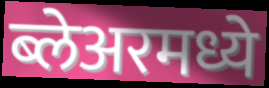
ब्लेअरमध्ये